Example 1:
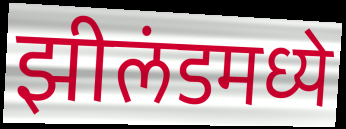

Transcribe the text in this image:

झीलंडमध्ये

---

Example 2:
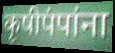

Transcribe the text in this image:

कृषीपंपांना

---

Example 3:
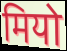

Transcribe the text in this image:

मियो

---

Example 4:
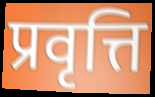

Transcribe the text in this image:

प्रवृत्ति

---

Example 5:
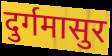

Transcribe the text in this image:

दुर्गमासुर